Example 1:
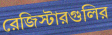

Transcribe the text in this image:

রেজিস্টারগুলির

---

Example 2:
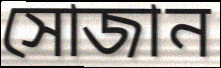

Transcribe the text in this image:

সোজান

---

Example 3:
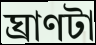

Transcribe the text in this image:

ঘ্রাণটা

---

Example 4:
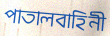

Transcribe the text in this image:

পাতালবাহিনী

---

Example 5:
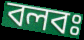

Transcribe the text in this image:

বলবঃ